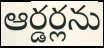
ఆర్డర్లను